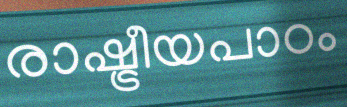
രാഷ്ട്രീയപാഠം